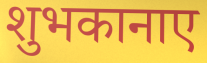
शुभकानाए